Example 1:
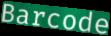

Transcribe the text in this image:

Barcode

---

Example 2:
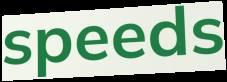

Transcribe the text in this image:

speeds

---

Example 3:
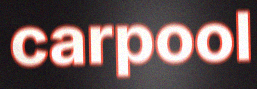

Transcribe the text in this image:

carpool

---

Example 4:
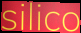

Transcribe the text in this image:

silico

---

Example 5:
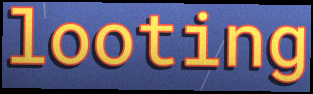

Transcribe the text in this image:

looting